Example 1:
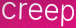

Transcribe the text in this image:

creep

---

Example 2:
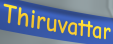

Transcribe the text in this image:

Thiruvattar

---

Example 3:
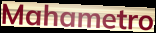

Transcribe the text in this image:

Mahametro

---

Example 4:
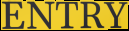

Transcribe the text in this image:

ENTRY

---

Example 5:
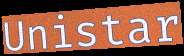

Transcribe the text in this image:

Unistar